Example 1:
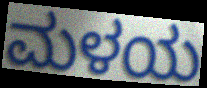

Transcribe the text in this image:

ಮಳಯ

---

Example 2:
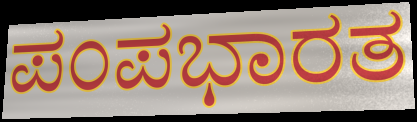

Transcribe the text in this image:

ಪಂಪಭಾರತ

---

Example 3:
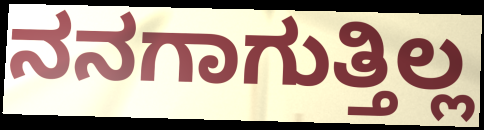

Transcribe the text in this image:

ನನಗಾಗುತ್ತಿಲ್ಲ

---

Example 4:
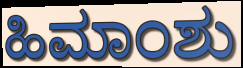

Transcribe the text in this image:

ಹಿಮಾಂಶು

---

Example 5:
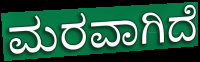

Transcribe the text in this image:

ಮರವಾಗಿದೆ